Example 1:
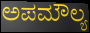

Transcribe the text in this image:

ಅಪಮೌಲ್ಯ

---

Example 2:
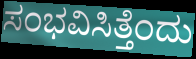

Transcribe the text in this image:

ಸಂಭವಿಸಿತ್ತೆಂದು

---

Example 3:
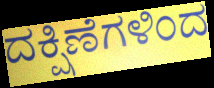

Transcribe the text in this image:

ದಕ್ಷಿಣೆಗಳಿಂದ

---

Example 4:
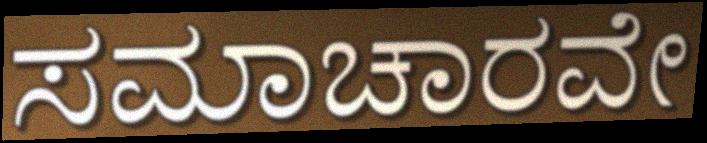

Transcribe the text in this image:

ಸಮಾಚಾರವೇ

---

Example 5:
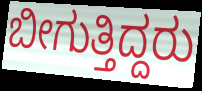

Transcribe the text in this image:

ಬೀಗುತ್ತಿದ್ದರು